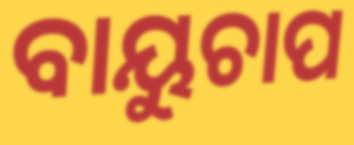
ବାୟୁଚାପ